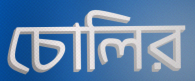
চোলির